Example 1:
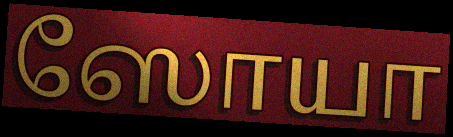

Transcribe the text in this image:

ஸோயா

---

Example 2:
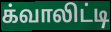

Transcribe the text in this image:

க்வாலிட்டி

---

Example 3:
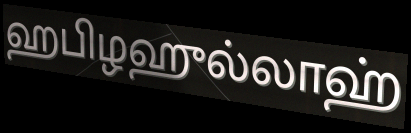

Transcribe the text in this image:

ஹபிழஹுல்லாஹ்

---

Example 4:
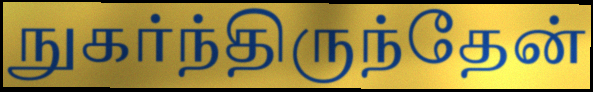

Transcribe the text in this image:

நுகர்ந்திருந்தேன்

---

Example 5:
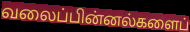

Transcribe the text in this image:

வலைப்பின்னல்களைப்